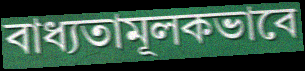
বাধ্যতামূলকভাবে